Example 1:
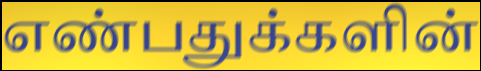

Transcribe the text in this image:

எண்பதுக்களின்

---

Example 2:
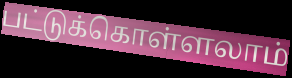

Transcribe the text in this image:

பட்டுக்கொள்ளலாம்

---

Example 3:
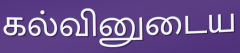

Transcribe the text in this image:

கல்வினுடைய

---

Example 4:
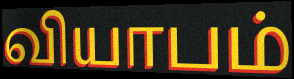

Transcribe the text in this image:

வியாபம்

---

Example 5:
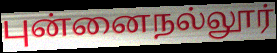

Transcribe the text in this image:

புன்னைநல்லூர்